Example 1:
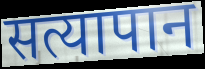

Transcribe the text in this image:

सत्यापान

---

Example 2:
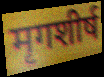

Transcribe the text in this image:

मृगशीर्ष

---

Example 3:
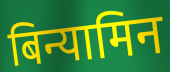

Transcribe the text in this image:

बिन्यामिन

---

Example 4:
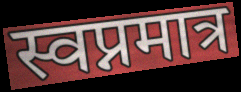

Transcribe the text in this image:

स्वप्नमात्र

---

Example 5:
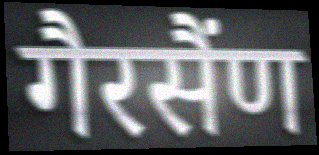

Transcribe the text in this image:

गैरसैंण